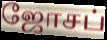
ஜோசப்